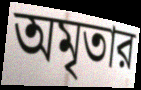
অমৃতার